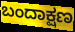
ಬಂದಾಕ್ಷಣ